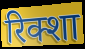
रिक्शा